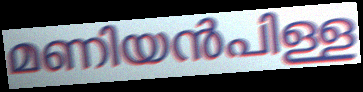
മണിയൻപിള്ള